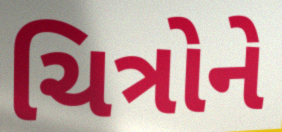
ચિત્રોને